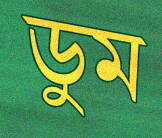
ডুম